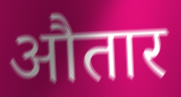
औतार